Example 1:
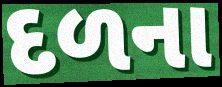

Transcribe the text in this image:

દળના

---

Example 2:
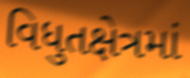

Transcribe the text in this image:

વિધુતક્ષેત્રમાં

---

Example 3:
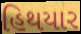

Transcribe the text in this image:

હિથયાર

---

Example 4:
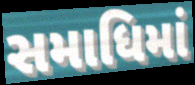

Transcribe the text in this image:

સમાધિમાં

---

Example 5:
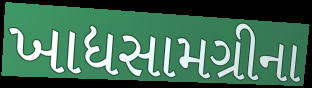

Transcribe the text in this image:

ખાદ્યસામગ્રીના